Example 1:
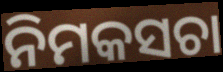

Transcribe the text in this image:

ନିମକସଚା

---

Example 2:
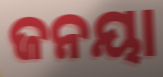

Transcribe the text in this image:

ଜନୟା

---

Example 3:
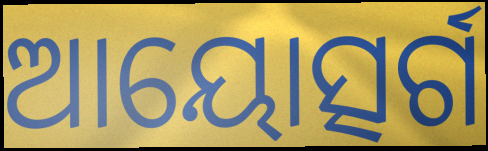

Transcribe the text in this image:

ଆୟୋତ୍ସର୍ଗ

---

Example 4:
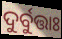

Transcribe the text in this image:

ଦୁର୍ବୁତ୍ତାଃ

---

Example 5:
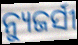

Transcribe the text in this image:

ନ୍ୟୁଜର୍ସୀ